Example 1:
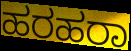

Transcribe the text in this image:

ಹರಹರಾ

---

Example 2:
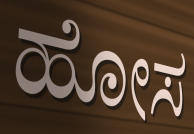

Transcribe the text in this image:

ಹೋಸ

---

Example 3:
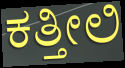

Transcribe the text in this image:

ಕತ್ತೀಲಿ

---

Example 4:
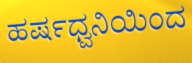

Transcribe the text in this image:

ಹರ್ಷಧ್ವನಿಯಿಂದ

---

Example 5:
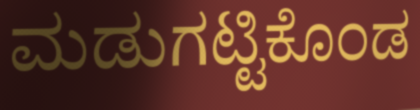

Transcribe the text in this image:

ಮಡುಗಟ್ಟಿಕೊಂಡ